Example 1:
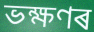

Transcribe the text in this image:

ভক্ষণৰ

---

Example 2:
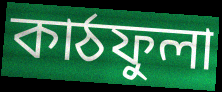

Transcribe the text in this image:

কাঠফুলা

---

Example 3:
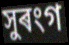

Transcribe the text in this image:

সুৰংগ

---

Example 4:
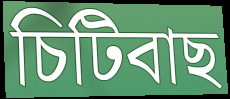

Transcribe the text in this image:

চিটিবাছ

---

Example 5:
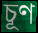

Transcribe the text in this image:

চূণ